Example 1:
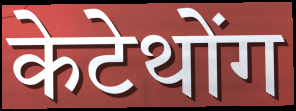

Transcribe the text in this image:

केटेथोंग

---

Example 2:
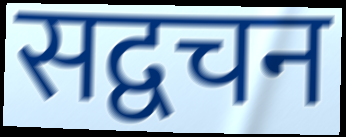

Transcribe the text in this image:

सद्वचन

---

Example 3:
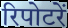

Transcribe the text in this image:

रिपोटरें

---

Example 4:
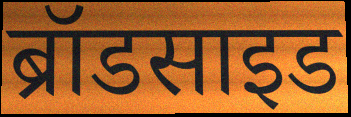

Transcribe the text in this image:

ब्रॉडसाइड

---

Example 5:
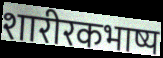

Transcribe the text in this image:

शारीरकभाष्य